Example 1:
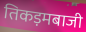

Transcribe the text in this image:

तिकड़मबाजी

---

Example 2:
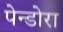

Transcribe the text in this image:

पेन्डोरा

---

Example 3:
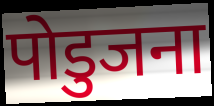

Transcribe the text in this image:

पोडुजना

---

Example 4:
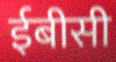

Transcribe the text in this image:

ईबीसी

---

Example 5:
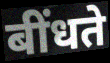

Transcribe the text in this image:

बींधते